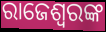
ରାଜେଶ୍ୱରଙ୍କ